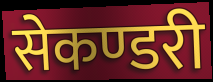
सेकण्‍डरी